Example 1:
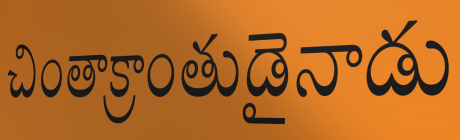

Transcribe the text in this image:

చింతాక్రాంతుడైనాడు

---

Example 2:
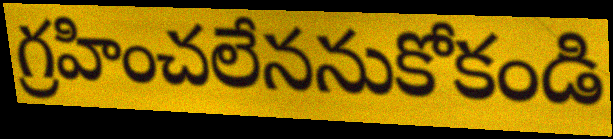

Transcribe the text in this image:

గ్రహించలేననుకోకండి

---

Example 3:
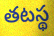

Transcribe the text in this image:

తటస్థ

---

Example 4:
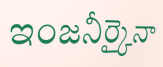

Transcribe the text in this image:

ఇంజనీర్కైనా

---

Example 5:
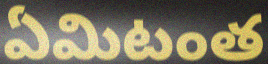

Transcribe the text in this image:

ఏమిటంత